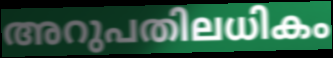
അറുപതിലധികം